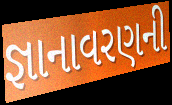
જ્ઞાનાવરણની